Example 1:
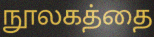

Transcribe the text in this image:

நூலகத்தை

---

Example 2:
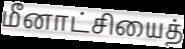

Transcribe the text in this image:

மீனாட்சியைத்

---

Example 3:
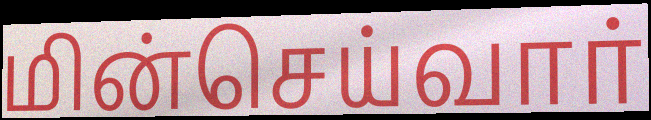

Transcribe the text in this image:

மின்செய்வார்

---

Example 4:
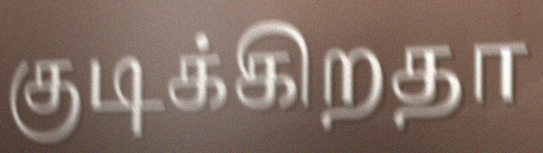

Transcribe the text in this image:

குடிக்கிறதா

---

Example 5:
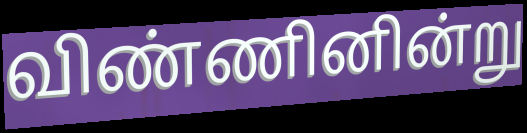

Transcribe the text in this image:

விண்ணினின்று